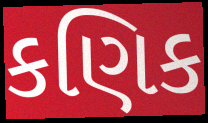
કણિક